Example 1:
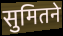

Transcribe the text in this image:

सुमितने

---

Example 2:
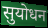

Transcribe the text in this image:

सुयोधन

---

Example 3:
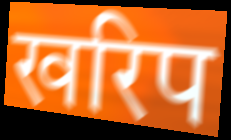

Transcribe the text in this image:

खरिप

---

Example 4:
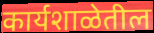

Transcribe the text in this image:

कार्यशाळेतील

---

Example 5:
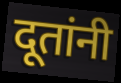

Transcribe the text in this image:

दूतांनी